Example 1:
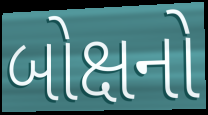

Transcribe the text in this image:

બોક્ષનો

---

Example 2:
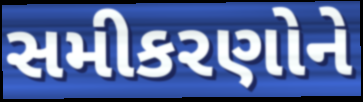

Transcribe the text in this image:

સમીકરણોને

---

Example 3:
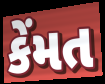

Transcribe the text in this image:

કેંમત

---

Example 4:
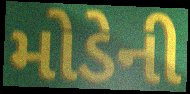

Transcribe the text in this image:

મોડેની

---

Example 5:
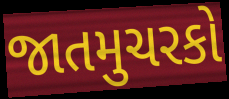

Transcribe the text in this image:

જાતમુચરકો